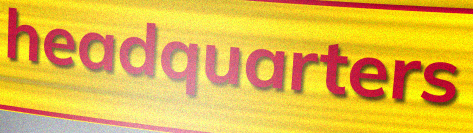
headquarters